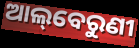
ଆଲ୍‌ବେରୁଣୀ